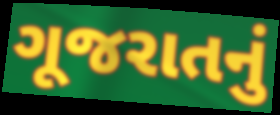
ગૂજરાતનું